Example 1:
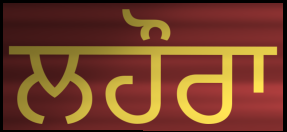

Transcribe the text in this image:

ਲਹੌਰਾ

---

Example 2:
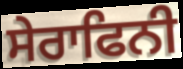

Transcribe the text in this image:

ਸੇਰਾਫਿਨੀ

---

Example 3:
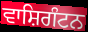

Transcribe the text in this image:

ਵਾਸ਼ਿਗੰਟਨ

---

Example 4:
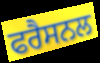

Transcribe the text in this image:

ਫਰੈਸਨਲ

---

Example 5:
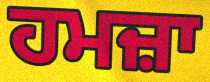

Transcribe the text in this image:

ਹਮਜ਼ਾ